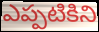
ఎప్పటికిని